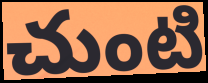
చుంటి